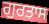
ਗੁਰਤਾਸ